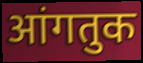
आंगतुक